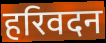
हरिवदन